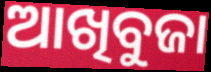
ଆଖିବୁଜା